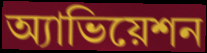
অ্যাভিয়েশন